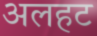
अलहट